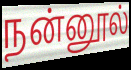
நன்னூல்